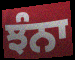
ਝੰਨਾ